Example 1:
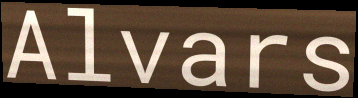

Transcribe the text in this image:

Alvars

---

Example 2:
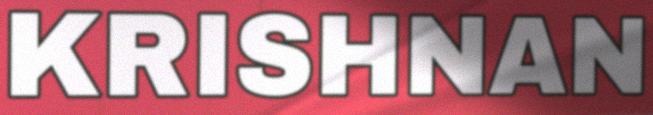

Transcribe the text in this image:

KRISHNAN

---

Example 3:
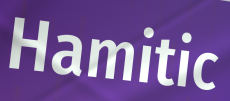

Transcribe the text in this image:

Hamitic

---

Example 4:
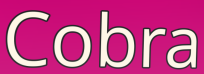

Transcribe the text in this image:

Cobra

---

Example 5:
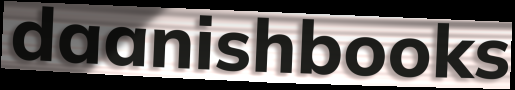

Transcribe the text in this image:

daanishbooks